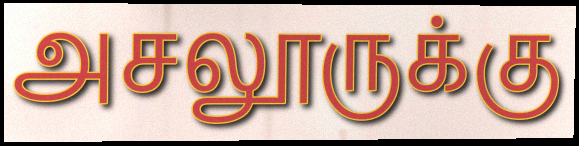
அசலூருக்கு